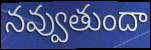
నవ్వుతుందా